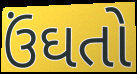
ઉંઘતો